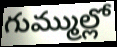
గుమ్ముల్లో